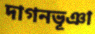
দাগনভূঞা